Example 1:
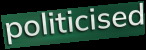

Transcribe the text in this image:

politicised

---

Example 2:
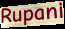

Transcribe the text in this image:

Rupani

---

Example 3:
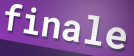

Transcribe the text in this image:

finale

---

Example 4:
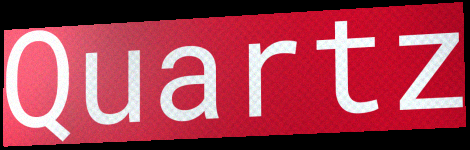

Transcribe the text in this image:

Quartz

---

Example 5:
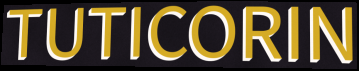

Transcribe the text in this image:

TUTICORIN